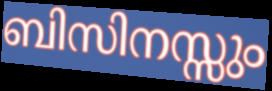
ബിസിനസ്സും